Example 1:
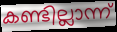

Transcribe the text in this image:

കണ്ടില്ലാന്ന്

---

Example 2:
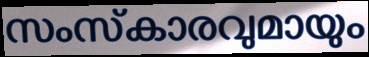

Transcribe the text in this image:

സംസ്‌കാരവുമായും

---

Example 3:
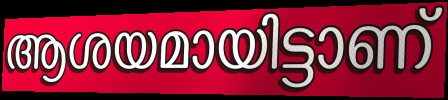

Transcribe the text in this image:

ആശയമായിട്ടാണ്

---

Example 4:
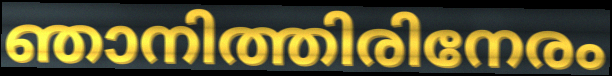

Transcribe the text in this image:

ഞാനിത്തിരിനേരം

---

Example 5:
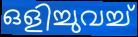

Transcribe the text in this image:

ഒളിച്ചുവച്ച്